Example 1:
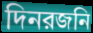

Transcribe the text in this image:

দিনরজনি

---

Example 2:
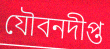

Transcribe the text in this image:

যৌবনদীপ্ত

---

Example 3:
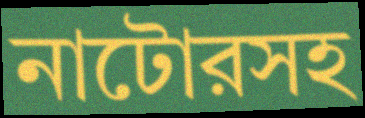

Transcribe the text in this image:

নাটোরসহ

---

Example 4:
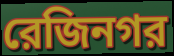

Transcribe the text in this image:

রেজিনগর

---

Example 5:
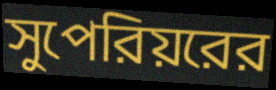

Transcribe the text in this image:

সুপেরিয়রের